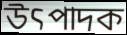
উৎপাদক